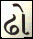
ઢો